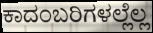
ಕಾದಂಬರಿಗಳಲ್ಲೆಲ್ಲ